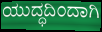
ಯುದ್ಧದಿಂದಾಗಿ